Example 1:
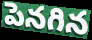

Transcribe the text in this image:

పెనగిన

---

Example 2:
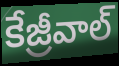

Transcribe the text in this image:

కేజ్రీవాల్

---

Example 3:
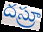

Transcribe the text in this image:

దస్రూ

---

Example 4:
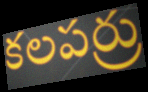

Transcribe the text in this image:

కలపర్రు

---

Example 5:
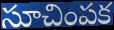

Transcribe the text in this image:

సూచింపక